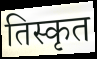
तिस्कृत